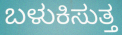
ಬಳುಕಿಸುತ್ತ